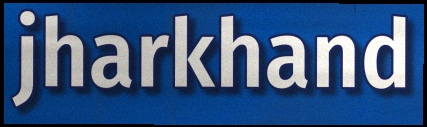
jharkhand